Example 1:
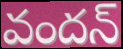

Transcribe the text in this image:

వందన్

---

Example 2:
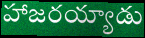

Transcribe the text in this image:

హాజరయ్యాడు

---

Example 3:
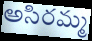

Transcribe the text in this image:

అసిరమ్మ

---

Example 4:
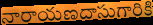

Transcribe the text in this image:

నారాయణదాసుగారికి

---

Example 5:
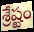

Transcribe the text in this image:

శ్రేష్టం